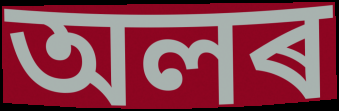
অলৰ